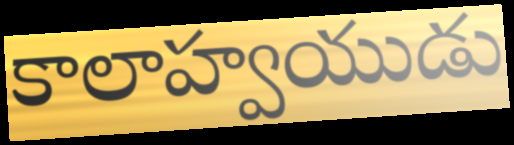
కాలాహ్వయుడు